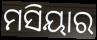
ମସିୟାର